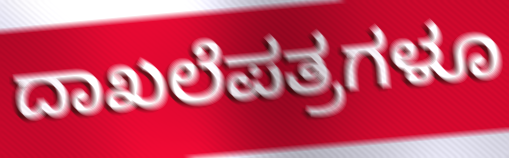
ದಾಖಲೆಪತ್ರಗಳೂ